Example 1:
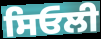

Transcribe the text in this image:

ਸਿਓਲੀ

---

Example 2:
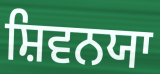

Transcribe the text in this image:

ਸ਼ਿਵਨਯਾ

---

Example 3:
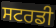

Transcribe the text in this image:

ਸਟਰਡੀ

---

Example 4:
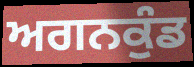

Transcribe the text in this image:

ਅਗਨਕੁੰਡ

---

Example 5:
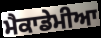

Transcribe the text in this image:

ਮੈਕਾਡੇਮੀਆ